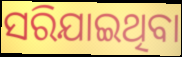
ସରିଯାଇଥିବା